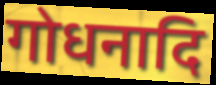
गोधनादि